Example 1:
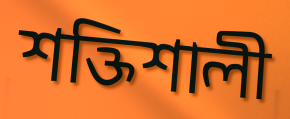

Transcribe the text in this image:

শক্তিশালী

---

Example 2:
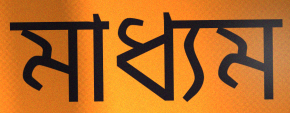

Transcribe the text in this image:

মাধ্যম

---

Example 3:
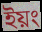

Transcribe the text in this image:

ইয়ং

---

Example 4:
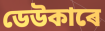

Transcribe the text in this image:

ডেউকাৰে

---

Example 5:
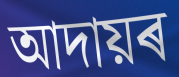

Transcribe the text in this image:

আদায়ৰ